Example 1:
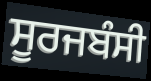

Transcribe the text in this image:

ਸੂਰਜਬੰਸੀ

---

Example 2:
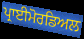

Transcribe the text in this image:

ਪ੍ਰਾਈਮੋਰਡਿਅਲ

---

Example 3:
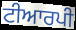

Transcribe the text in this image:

ਟੀਆਰਪੀ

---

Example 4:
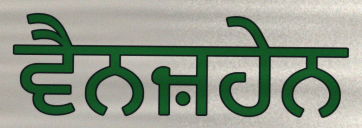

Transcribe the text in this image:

ਵੈਨਜ਼ਹੇਨ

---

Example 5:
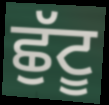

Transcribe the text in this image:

ਛੁੱਟੂ